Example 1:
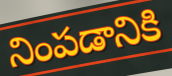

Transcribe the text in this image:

నింపడానికి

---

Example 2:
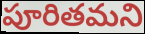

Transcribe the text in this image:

పూరితమని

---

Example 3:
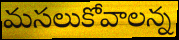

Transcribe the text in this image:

మసలుకోవాలన్న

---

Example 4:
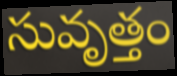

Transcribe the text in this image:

సువృత్తం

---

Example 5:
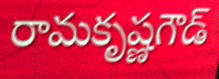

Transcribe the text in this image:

రామకృష్ణగౌడ్